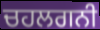
ਚਹਲਗਨੀ